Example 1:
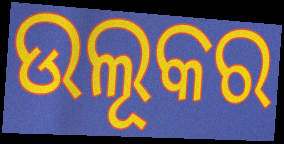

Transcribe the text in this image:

ଉଲୂକର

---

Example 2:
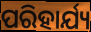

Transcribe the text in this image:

ପରିହାର୍ଯ୍ୟ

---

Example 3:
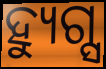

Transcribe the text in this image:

ହ୍ୟୁଗ୍ସ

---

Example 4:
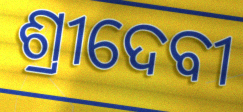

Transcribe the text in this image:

ଶ୍ରୀଦେବୀ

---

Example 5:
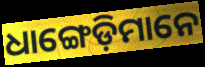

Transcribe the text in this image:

ଧାଙ୍ଗେଡ଼ିମାନେ